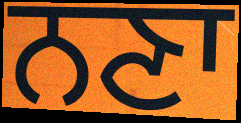
ਨਣਾ